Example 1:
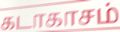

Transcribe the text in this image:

கடாகாசம்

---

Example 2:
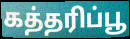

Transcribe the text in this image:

கத்தரிப்பூ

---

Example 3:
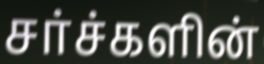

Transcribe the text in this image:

சர்ச்களின்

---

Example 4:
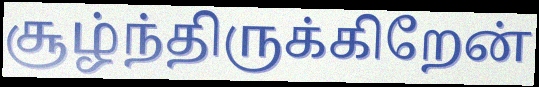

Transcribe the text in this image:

சூழ்ந்திருக்கிறேன்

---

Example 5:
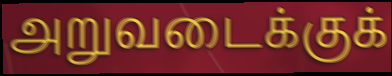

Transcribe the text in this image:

அறுவடைக்குக்